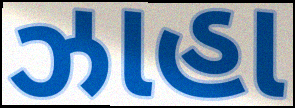
ઝાહા